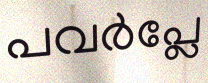
പവർപ്ലേ